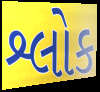
શ્લોક